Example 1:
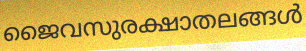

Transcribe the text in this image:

ജൈവസുരക്ഷാതലങ്ങൾ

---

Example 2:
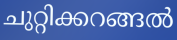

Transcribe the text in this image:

ചുറ്റിക്കറങ്ങൽ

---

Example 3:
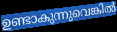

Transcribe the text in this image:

ഉണ്ടാകുന്നുവെങ്കിൽ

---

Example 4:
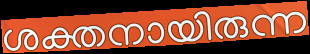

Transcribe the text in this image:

ശക്തനായിരുന്ന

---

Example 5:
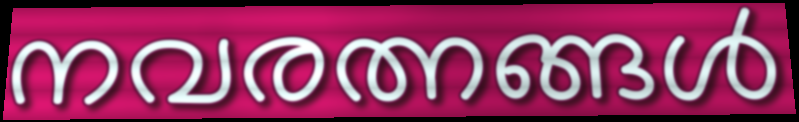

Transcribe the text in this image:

നവരത്നങ്ങൾ